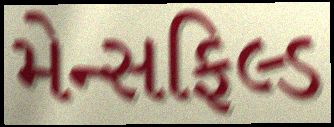
મેન્સફિલ્ડ